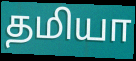
தமியா